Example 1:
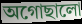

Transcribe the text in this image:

অগোছালো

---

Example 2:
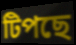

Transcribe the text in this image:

টিপছে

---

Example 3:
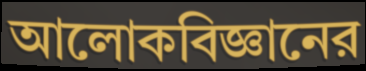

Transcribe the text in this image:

আলোকবিজ্ঞানের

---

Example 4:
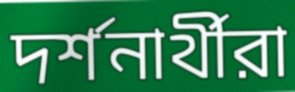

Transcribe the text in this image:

দর্শনার্থীরা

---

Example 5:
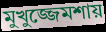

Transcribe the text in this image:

মুখুজ্জেমশায়